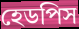
হেডপিস